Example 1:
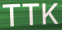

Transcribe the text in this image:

TTK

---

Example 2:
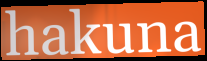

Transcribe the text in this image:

hakuna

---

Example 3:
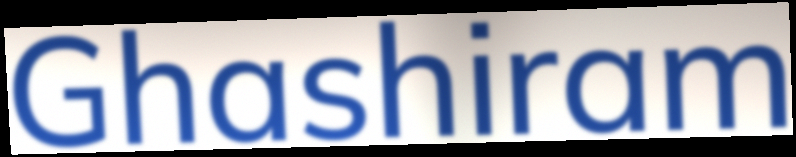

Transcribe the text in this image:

Ghashiram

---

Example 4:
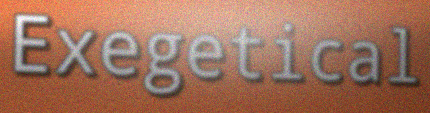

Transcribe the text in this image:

Exegetical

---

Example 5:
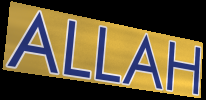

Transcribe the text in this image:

ALLAH